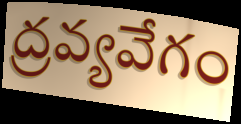
ద్రవ్యవేగం